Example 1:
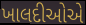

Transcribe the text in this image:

ખાલદીઓએ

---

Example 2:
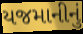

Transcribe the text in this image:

યજમાનીનું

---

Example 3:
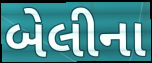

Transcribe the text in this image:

બેલીના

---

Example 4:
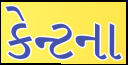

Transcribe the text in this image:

કેન્ટના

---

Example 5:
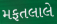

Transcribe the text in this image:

મફતલાલે